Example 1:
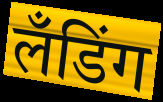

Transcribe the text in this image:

लँडिंग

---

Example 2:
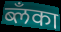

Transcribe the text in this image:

ब्लँका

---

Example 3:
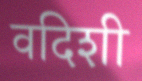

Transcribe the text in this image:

वदिशी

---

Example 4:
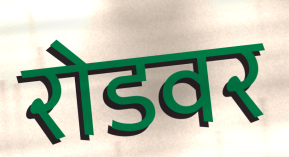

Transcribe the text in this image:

रोडवर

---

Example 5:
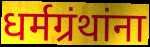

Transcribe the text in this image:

धर्मग्रंथांना